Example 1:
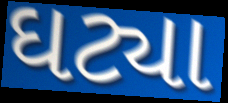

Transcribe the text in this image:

ઘટ્યા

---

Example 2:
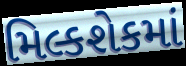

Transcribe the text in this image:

મિલ્કશેકમાં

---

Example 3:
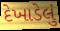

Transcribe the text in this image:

દેખાડેલું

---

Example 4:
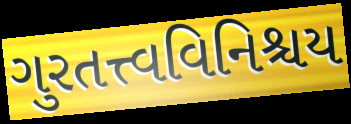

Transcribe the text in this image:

ગુરતત્ત્વવિનિશ્ચય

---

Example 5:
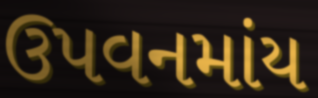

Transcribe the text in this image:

ઉપવનમાંય